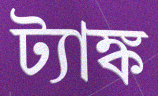
ট্যাঙ্ক